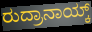
ರುದ್ರಾನಾಯ್ಕ್